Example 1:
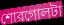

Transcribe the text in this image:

শোরগোলটা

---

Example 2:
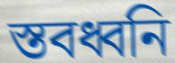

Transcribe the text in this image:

স্তবধ্বনি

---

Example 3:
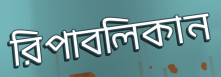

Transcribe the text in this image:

রিপাবলিকান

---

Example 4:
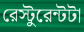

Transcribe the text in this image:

রেস্টুরেন্টটা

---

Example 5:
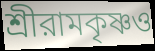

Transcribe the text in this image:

শ্রীরামকৃষ্ণও